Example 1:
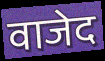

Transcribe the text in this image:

वाजेद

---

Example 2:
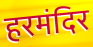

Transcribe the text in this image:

हरमंदिर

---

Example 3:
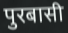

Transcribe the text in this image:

पुरबासी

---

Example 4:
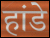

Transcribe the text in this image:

हांडे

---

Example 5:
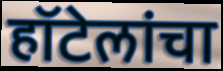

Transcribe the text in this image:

हॉटेलांचा